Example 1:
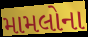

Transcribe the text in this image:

મામલોના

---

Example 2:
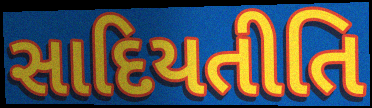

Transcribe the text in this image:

સાદિયતીતિ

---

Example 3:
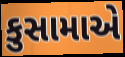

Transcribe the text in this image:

કુસામાએ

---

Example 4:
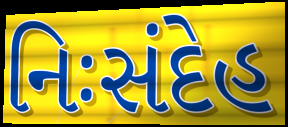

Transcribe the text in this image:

નિઃસંદેહ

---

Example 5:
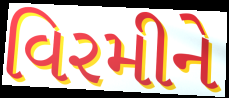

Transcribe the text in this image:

વિરમીને